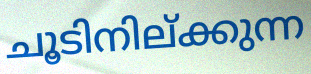
ചൂടിനില്ക്കുന്ന